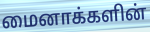
மைனாக்களின்